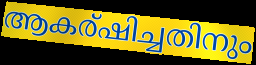
ആകര്ഷിച്ചതിനും